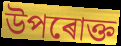
উপৰোক্ত